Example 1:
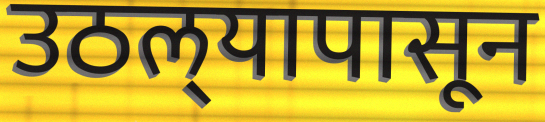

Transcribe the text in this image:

उठल्यापासून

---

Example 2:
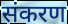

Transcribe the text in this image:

संकरण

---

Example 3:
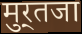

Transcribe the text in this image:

मुर्तजा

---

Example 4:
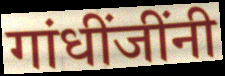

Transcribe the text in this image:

गांधींजींनी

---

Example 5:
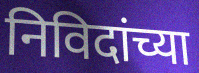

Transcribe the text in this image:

निविदांच्या